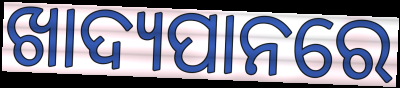
ଖାଦ୍ୟପାନରେ